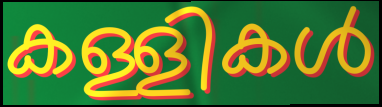
കള്ളികൾ